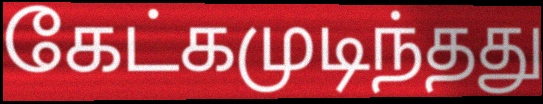
கேட்கமுடிந்தது